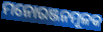
ମନୋରଞ୍ଜନମୂଳକ